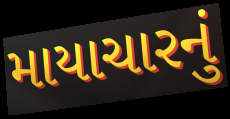
માયાચારનું